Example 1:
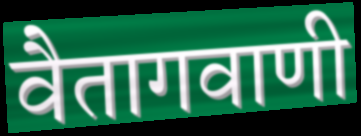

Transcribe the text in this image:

वैतागवाणी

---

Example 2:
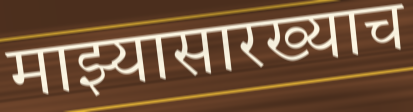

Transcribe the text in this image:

माझ्यासारख्याच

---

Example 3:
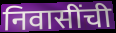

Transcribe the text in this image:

निवासींची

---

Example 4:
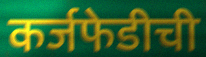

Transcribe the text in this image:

कर्जफेडीची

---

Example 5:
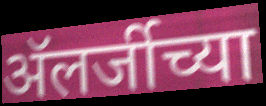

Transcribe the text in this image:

ॲलर्जीच्या